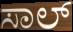
ಸಾಲ್